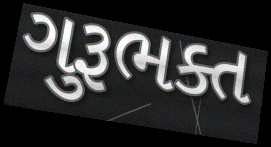
ગુરૂભક્ત